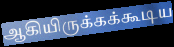
ஆகியிருக்கக்கூடிய